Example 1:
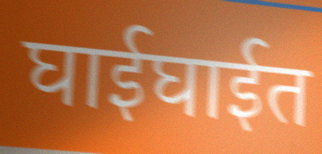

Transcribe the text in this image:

घाईघाईत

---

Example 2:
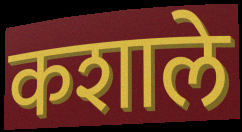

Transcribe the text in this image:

कशाले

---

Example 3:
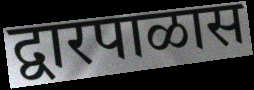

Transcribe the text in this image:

द्वारपाळास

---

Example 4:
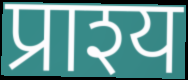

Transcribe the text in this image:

प्राश्य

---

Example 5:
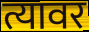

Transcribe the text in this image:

त्यावर